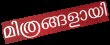
മിത്രങ്ങളായി